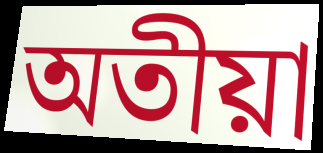
অতীয়া